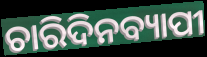
ଚାରିଦିନବ୍ୟାପୀ